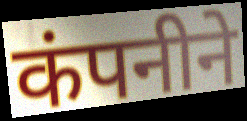
कंपनीने